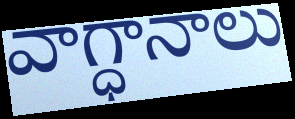
వాగ్ధానాలు